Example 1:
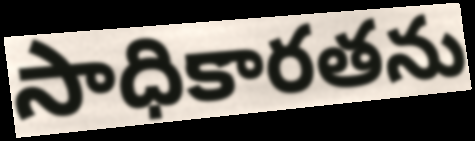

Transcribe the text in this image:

సాధికారతను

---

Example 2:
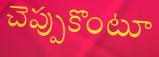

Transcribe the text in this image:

చెప్పుకొంటూ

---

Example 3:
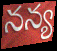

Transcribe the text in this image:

నన్య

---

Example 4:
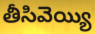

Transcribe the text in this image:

తీసివెయ్యి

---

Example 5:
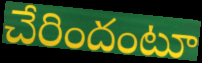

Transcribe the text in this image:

చేరిందంటూ